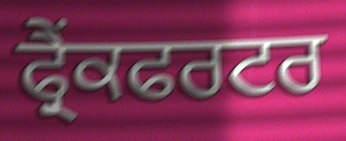
ਫ੍ਰੈਂਕਫਰਟਰ